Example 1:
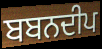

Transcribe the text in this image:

ਬਬਨਦੀਪ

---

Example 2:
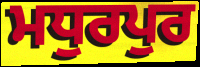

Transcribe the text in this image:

ਮਧੁਰਪੁਰ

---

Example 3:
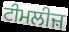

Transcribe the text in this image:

ਟੀਮਲੀਜ਼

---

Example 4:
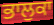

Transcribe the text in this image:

ਭਾਲੁਕਾ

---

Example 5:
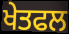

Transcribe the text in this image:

ਖੇਤਫਲ